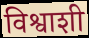
विश्वाशी